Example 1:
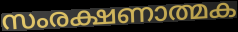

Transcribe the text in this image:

സംരക്ഷണാത്മക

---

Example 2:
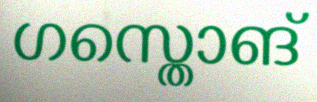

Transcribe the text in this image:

ഗസ്തൊങ്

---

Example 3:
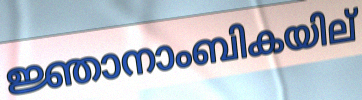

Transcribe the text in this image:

ജ്ഞാനാംബികയില്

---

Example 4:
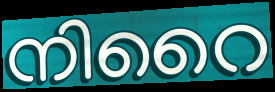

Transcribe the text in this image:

നിറൈ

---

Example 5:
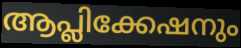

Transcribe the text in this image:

ആപ്ലിക്കേഷനും